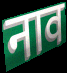
नाव